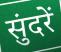
सुंदरें